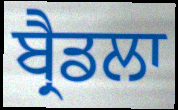
ਬ੍ਰੈਡਲਾ